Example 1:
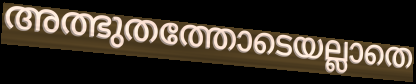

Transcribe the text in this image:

അത്ഭുതത്തോടെയല്ലാതെ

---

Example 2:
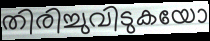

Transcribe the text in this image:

തിരിച്ചുവിടുകയോ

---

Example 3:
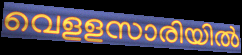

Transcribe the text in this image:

വെളളസാരിയിൽ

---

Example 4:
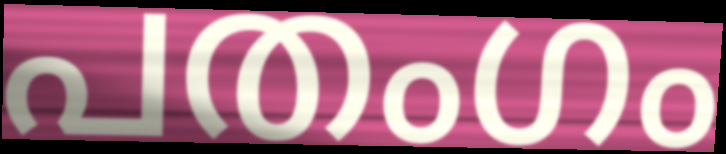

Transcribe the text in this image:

പതംഗം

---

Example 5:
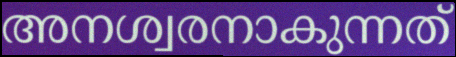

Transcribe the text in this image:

അനശ്വരനാകുന്നത്